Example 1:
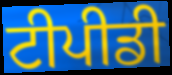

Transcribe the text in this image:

ਟੀਪੀਡੀ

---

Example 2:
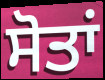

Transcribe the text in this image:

ਸੋਤਾਂ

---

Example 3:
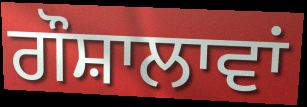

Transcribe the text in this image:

ਗੌਸ਼ਾਲਾਵਾਂ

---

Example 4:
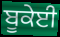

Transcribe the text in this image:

ਬੂਕੇਈ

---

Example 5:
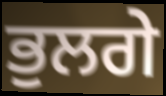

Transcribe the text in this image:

ਭੁਲਗੇ